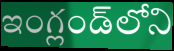
ఇంగ్లండ్‌లోని